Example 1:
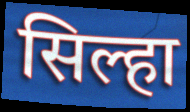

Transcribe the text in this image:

सिल्हा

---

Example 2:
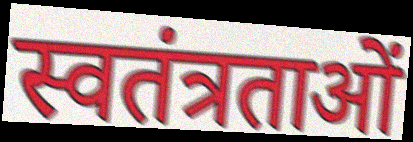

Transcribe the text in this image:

स्वतंत्रताओं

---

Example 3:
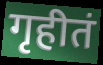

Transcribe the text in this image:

गृहीतं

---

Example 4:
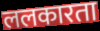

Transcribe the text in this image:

ललकारता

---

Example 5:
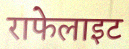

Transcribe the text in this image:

राफेलाइट